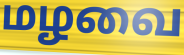
மழவை